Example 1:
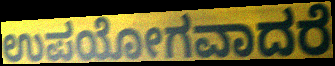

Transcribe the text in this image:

ಉಪಯೋಗವಾದರೆ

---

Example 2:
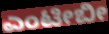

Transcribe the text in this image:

ಎಂಟೀಬೀ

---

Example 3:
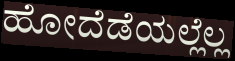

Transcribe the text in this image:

ಹೋದೆಡೆಯಲ್ಲೆಲ್ಲ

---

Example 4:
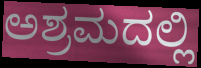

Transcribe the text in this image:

ಅಶ್ರಮದಲ್ಲಿ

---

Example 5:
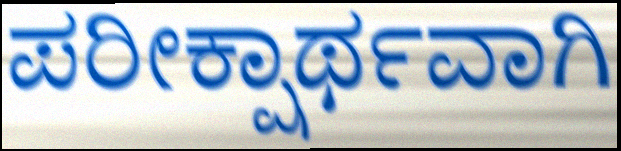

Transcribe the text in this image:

ಪರೀಕ್ಷಾರ್ಥವಾಗಿ